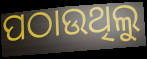
ପଠାଉଥିଲୁ